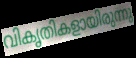
വികൃതികളായിരുന്നു